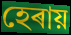
হেৰায়